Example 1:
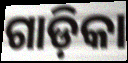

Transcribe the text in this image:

ଗାଡ଼ିକା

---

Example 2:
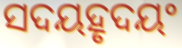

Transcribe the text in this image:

ସଦୟହୃଦୟଂ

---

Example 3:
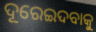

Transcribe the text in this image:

ଦୂରେଇଦବାକୁ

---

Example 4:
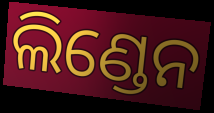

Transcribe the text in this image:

ଲିଣ୍ଡେନ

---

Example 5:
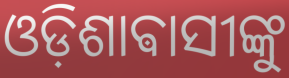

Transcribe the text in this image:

ଓଡ଼ିଶାଵାସୀଙ୍କୁ